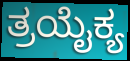
ತ್ರಯೈಕ್ಯ